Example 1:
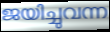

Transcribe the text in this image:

ജയിച്ചുവന്ന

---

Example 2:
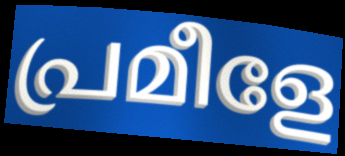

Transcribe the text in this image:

പ്രമീളേ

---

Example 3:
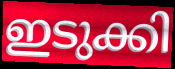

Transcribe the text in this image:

ഇടുക്കി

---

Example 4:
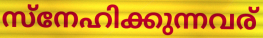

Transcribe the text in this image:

സ്നേഹിക്കുന്നവര്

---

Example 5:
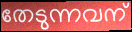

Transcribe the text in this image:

തേടുന്നവന്